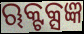
ୠକ୍ଟକ୍ସଜ୍ଞ